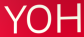
YOH